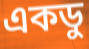
একডু